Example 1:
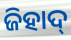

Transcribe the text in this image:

ଜିହାଦ୍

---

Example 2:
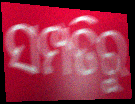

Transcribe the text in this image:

ସମ୍ପତିରୁ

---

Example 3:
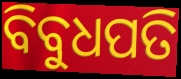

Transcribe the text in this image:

ବିବୁଧପତି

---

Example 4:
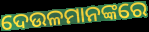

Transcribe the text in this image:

ଦେଉଳମାନଙ୍କରେ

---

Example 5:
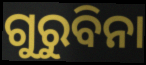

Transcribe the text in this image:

ଗୁରୁବିନା